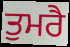
ਤੁਮਰੈ